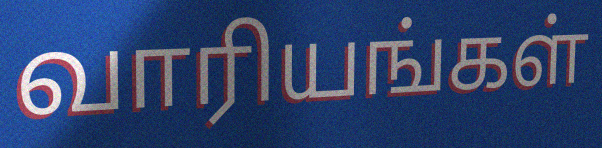
வாரியங்கள்